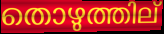
തൊഴുത്തില്